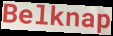
Belknap